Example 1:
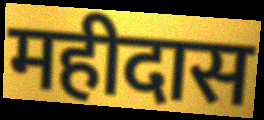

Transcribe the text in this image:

महीदास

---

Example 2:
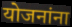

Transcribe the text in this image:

योजनांना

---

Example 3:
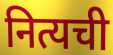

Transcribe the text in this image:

नित्यची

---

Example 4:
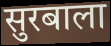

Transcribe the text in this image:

सुरबाला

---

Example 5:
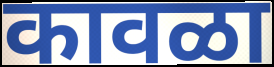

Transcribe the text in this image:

कावळा